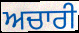
ਅਚਾਰੀ